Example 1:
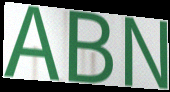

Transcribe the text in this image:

ABN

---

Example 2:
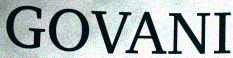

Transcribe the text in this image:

GOVANI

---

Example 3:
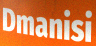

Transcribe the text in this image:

Dmanisi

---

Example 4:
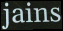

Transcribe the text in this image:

jains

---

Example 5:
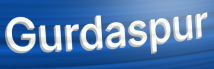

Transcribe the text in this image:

Gurdaspur